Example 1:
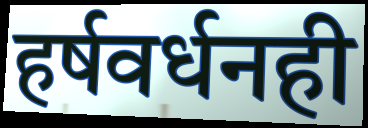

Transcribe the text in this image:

हर्षवर्धनही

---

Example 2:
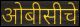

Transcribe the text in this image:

ओबीसीचे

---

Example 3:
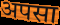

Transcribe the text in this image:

अपसा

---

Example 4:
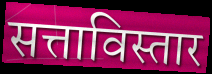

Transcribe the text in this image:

सत्ताविस्तार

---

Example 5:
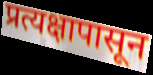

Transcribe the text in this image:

प्रत्यक्षापासून